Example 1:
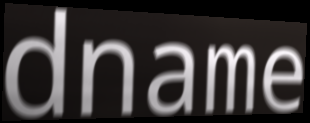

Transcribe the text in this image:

dname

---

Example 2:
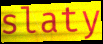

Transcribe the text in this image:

slaty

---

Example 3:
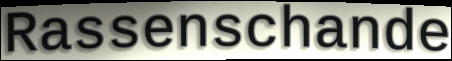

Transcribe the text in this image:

Rassenschande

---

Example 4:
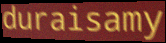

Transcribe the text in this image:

duraisamy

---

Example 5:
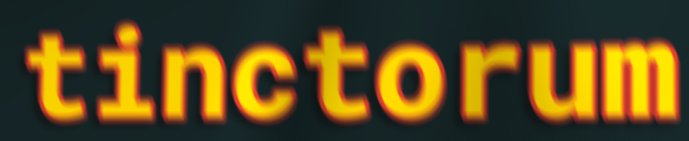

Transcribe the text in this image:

tinctorum